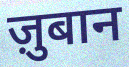
ज़ुबान